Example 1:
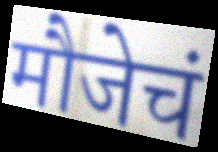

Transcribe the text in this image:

मौजेचं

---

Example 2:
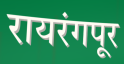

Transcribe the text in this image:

रायरंगपूर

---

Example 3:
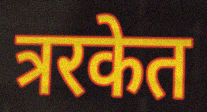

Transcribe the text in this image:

त्ररकेत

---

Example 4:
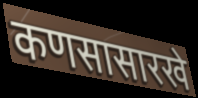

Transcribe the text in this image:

कणसासारखे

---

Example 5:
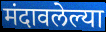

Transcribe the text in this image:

मंदावलेल्या